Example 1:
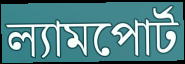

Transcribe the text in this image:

ল্যামপোর্ট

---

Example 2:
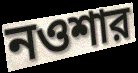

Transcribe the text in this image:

নওশার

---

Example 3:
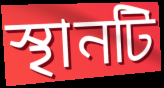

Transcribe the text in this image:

স্থানটি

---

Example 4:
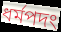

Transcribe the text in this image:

ধর্মপদং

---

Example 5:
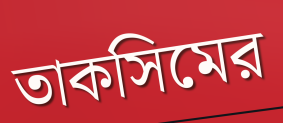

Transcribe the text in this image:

তাকসিমের